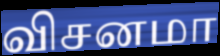
விசனமா